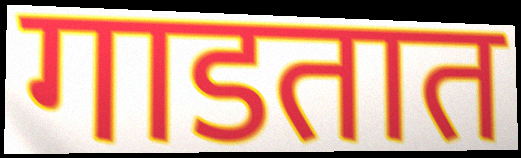
गाडतात